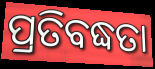
ପ୍ରତିବଦ୍ଧତା